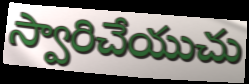
స్వారిచేయుచు